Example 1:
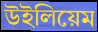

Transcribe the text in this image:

উইলিয়েম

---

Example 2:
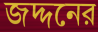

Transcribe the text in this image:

জদ্দনের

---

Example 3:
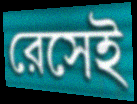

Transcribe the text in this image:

রেসেই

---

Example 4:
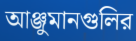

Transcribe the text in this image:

আঞ্জুমানগুলির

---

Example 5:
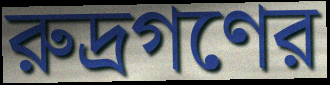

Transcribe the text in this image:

রুদ্রগণের